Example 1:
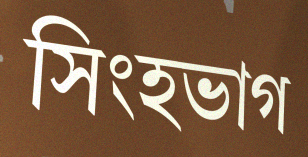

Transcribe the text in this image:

সিংহভাগ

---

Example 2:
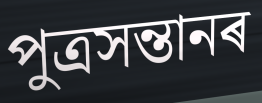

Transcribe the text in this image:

পুত্ৰসন্তানৰ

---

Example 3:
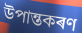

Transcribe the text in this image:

উপান্তকৰণ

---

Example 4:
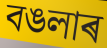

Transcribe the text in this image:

বঙলাৰ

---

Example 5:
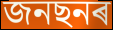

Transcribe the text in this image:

জনছনৰ